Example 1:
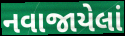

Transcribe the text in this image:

નવાજાયેલાં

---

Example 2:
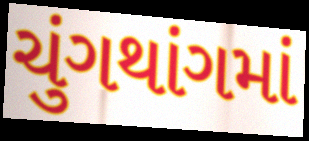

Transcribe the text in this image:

ચુંગથાંગમાં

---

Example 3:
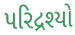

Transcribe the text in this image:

પરિદ્રશ્યો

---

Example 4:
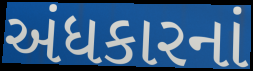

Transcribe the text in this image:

અંધકારનાં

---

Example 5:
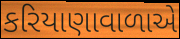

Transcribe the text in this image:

કરિયાણાવાળાએ